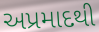
અપ્રમાદથી